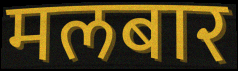
मलबार